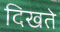
दिखते